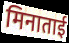
मिनाताई